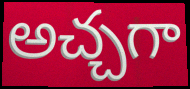
అచ్చగా